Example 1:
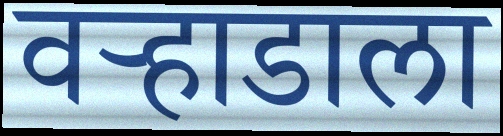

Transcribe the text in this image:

वऱ्हाडाला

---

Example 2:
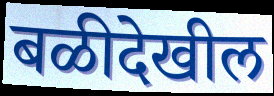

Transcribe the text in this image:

बळीदेखील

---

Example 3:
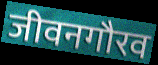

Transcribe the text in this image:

जीवनगौरव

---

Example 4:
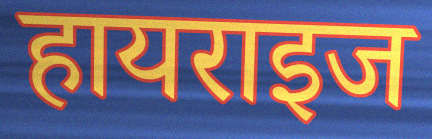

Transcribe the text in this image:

हायराइज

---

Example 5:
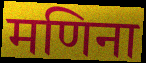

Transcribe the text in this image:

मणिना